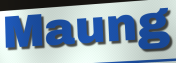
Maung